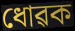
ধোৱক